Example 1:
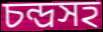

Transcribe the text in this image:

চন্দ্রসহ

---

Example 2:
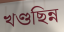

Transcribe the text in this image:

খণ্ডছিন্ন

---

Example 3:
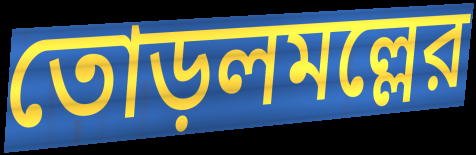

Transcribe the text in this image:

তোড়লমল্লের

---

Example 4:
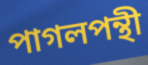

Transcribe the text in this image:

পাগলপন্থী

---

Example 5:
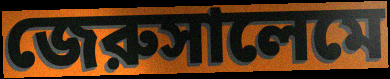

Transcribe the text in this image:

জেরুসালেমে